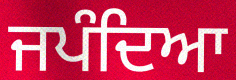
ਜਪੰਦਿਆ